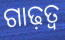
ଗାଢ଼ତ୍ବ